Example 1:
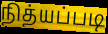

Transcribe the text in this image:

நித்யப்படி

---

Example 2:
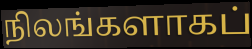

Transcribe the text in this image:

நிலங்களாகப்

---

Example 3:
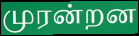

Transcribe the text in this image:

முரன்றன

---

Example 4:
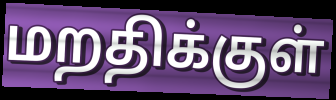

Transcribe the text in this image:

மறதிக்குள்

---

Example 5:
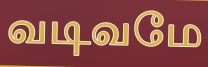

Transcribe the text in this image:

வடிவமே